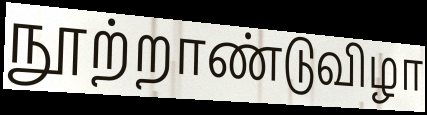
நூற்றாண்டுவிழா